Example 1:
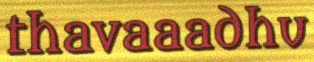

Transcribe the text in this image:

thavaaadhu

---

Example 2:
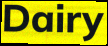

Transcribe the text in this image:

Dairy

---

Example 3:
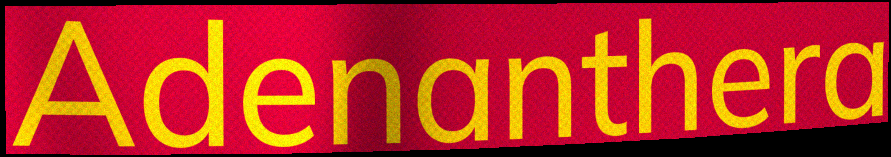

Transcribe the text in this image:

Adenanthera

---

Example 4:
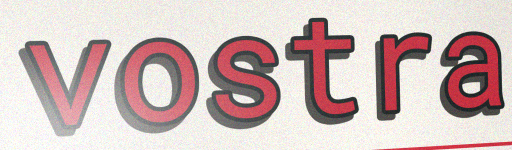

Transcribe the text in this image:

vostra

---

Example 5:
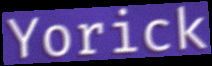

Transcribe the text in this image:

Yorick